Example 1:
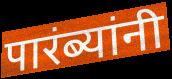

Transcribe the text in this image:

पारंब्यांनी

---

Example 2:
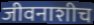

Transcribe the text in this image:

जीवनाशीच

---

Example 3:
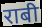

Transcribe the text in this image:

राबी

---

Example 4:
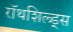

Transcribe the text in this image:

रॉथशिल्ड्स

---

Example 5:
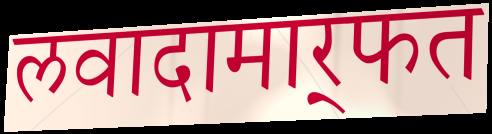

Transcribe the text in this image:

लवादामार्फत